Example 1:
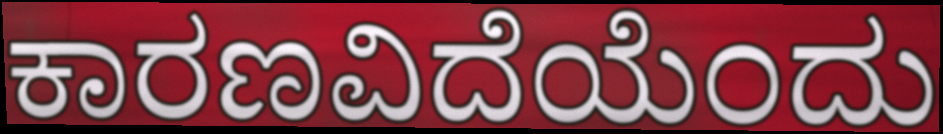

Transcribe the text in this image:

ಕಾರಣವಿದೆಯೆಂದು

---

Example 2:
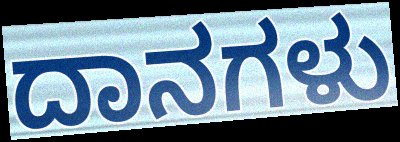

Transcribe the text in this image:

ದಾನಗಳು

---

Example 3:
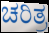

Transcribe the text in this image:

ಚರಿತ್ರ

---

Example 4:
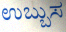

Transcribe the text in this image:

ಉಬ್ಬುಸ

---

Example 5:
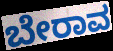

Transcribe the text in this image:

ಬೇರಾವ